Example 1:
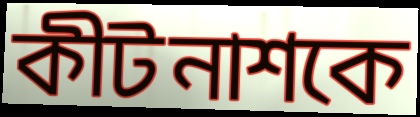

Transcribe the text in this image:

কীটনাশকে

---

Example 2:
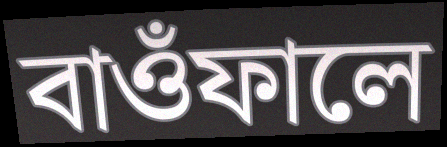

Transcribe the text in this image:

বাওঁফালে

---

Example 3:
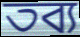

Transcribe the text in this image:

তব্য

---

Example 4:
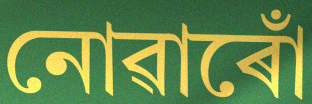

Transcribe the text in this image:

নোৱাৰোঁ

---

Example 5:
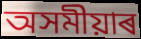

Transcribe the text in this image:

অসমীয়াৰ